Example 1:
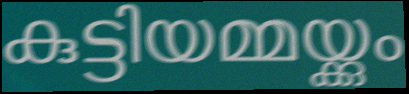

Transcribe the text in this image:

കുട്ടിയമ്മയ്ക്കും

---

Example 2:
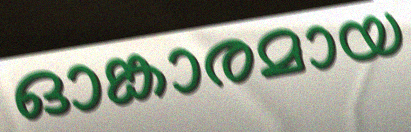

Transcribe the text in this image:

ഓങ്കാരമായ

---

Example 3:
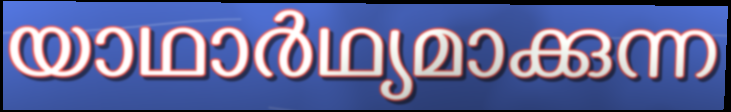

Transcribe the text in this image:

യാഥാർഥ്യമാക്കുന്ന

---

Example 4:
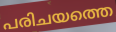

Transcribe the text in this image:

പരിചയത്തെ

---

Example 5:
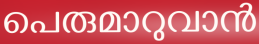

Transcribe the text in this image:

പെരുമാറുവാൻ